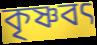
কৃষ্ণবৎ